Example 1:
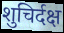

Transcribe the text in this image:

शुचिर्दक्ष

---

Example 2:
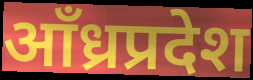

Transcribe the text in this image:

आँध्रप्रदेश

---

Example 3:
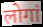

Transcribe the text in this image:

लोगां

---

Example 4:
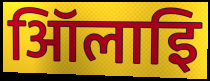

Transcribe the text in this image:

ऑिलाइि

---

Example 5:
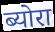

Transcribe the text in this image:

ब्योरा